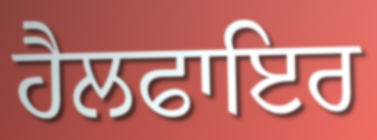
ਹੈਲਫਾਇਰ